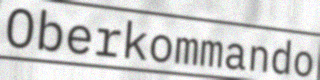
Oberkommando